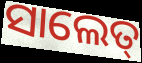
ସାଲେତ୍